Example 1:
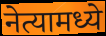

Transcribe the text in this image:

नेत्यामध्ये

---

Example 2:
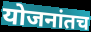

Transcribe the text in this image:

योजनांतच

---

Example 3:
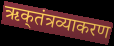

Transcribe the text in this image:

ऋक्‌तंत्रव्याकरण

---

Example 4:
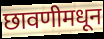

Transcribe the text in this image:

छावणीमधून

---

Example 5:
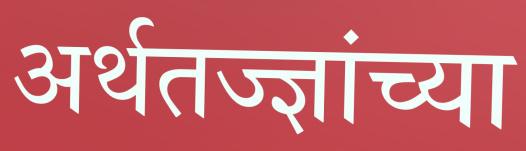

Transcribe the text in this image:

अर्थतज्ज्ञांच्या